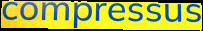
compressus